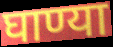
घाण्या